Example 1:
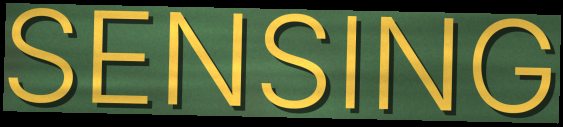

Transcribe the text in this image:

SENSING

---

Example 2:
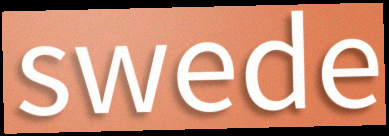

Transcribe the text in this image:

swede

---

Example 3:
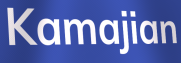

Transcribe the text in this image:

Kamajian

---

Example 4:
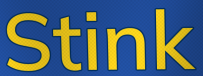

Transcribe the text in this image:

Stink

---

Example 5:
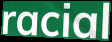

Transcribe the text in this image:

racial